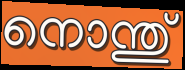
നൊന്തു്